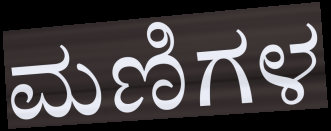
ಮಣಿಗಳ